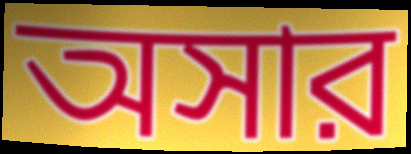
অসার